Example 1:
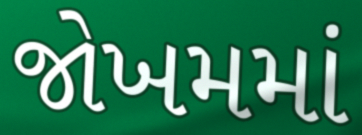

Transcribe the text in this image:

જોખમમાં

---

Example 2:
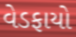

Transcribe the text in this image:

વેડફાયો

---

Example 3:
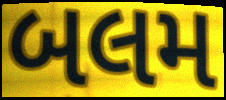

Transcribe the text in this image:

બલમ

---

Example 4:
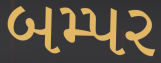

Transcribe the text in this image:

બમ્પર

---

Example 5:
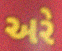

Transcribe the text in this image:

અરે